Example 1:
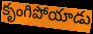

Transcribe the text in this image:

కృంగిపోయాడు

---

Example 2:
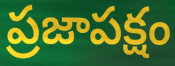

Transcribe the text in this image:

ప్రజాపక్షం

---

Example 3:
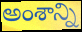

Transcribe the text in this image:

అంశాన్ని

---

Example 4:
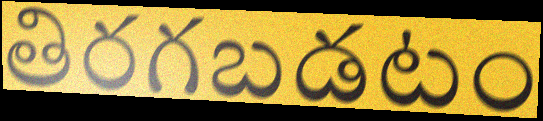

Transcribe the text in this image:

తిరగబడటం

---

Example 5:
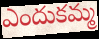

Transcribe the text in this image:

ఎందుకమ్మ